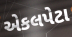
એકલપેટા